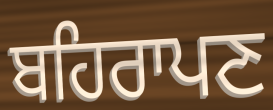
ਬਹਿਰਾਪਣ